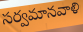
సర్వమానవాళి